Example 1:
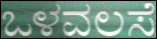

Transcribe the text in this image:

ಒಳವಲಸೆ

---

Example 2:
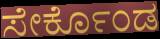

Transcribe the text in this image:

ಸೇರ್ಕೊಂಡ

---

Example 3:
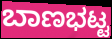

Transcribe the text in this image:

ಬಾಣಭಟ್ಟ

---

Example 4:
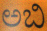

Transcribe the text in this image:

ಅಬಿ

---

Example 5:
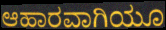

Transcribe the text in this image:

ಆಹಾರವಾಗಿಯೂ